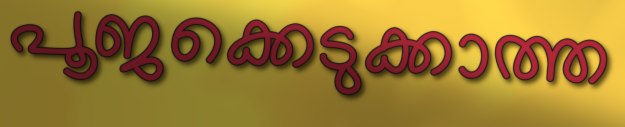
പൂജക്കെടുക്കാത്ത